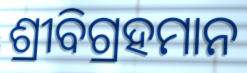
ଶ୍ରୀବିଗ୍ରହମାନ